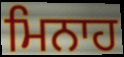
ਮਿਨਾਹ